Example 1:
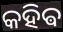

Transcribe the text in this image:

କହିଵ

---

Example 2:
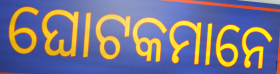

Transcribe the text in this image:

ଘୋଟକମାନେ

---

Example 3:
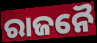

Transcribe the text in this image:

ରାଜନୈ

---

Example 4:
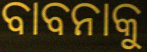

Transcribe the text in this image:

ବାବନାକୁ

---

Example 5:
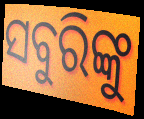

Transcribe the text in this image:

ସବୁରିଙ୍କୁ